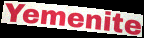
Yemenite